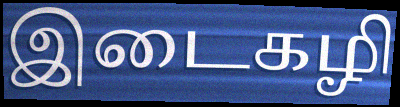
இடைகழி